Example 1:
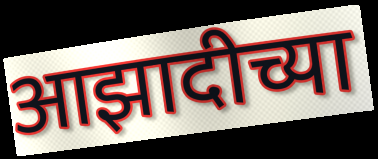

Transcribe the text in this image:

आझादीच्या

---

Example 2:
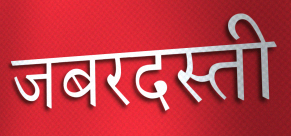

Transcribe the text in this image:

जबरदस्ती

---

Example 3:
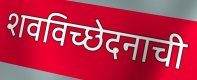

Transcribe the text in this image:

शवविच्छेदनाची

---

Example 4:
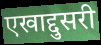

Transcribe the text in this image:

एखाद्दुसरी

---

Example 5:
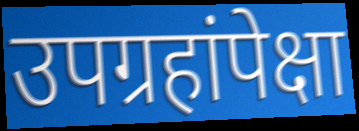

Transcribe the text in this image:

उपग्रहांपेक्षा